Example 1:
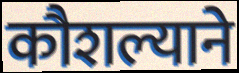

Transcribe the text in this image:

कौशल्याने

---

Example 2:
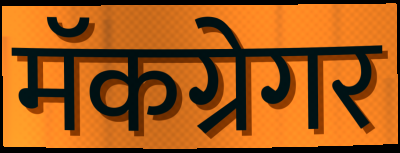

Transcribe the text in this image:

मॅकग्रेगर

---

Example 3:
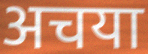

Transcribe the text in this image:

अचया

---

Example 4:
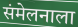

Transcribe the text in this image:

संमेलनाला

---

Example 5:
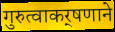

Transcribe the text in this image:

गुरुत्वाकर्षणाने